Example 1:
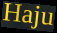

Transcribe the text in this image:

Haju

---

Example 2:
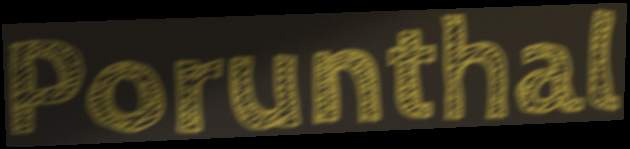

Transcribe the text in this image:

Porunthal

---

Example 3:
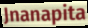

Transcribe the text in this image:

Jnanapita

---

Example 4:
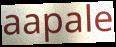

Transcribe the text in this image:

aapale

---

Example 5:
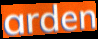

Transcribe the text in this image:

arden